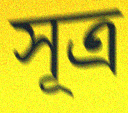
সূত্ৰ